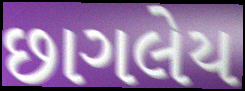
છાગલેય